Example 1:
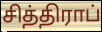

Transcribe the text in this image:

சித்திராப்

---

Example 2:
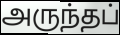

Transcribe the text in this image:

அருந்தப்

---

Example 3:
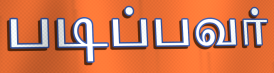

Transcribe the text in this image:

படிப்பவர்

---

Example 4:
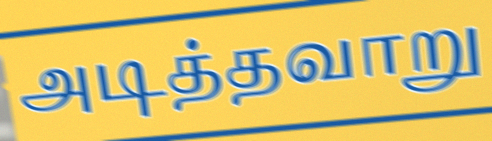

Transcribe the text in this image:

அடித்தவாறு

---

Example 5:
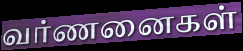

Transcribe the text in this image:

வர்ணனைகள்